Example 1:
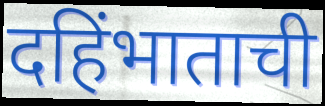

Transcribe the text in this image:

दहिंभाताची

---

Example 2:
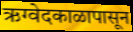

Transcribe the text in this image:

ऋग्वेदकाळापासून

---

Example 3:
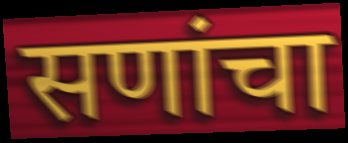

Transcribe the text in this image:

सणांचा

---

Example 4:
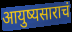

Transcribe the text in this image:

आयुष्यसाराचं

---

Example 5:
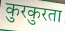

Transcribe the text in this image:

कुरकुरता